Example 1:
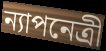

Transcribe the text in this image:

ন্যাপনেত্রী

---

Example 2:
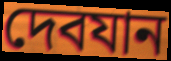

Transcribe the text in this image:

দেবযান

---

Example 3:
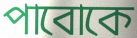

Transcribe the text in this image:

পাবোকে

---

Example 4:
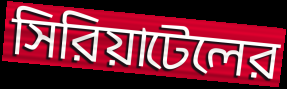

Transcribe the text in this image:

সিরিয়াটেলের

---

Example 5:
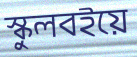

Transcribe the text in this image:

স্কুলবইয়ে